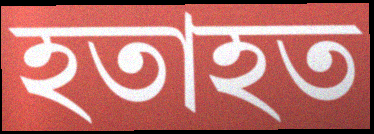
হতাহত